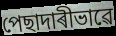
পেছাদাৰীভাৱে